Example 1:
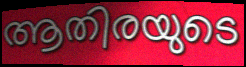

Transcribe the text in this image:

ആതിരയുടെ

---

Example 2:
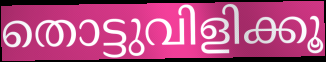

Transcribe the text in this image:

തൊട്ടുവിളിക്കൂ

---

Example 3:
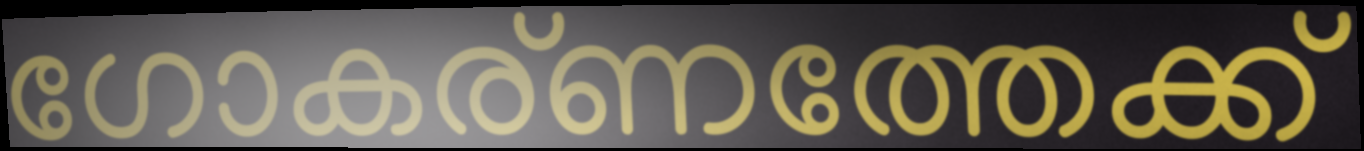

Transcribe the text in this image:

ഗോകര്ണത്തേക്ക്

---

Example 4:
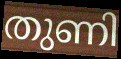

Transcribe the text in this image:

തുണി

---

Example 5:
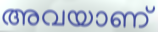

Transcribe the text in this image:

അവയാണ്